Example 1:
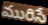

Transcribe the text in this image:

మురిసే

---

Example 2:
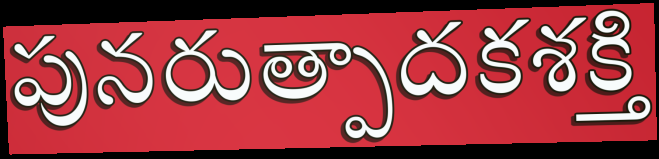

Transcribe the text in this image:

పునరుత్పాదకశక్తి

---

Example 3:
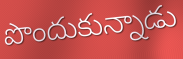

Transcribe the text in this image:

పొందుకున్నాడు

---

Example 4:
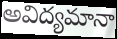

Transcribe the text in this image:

అవిద్యమానా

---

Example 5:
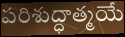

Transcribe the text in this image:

పరిశుద్ధాత్మయే